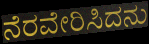
ನೆರವೇರಿಸಿದನು